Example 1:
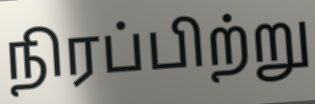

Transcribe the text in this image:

நிரப்பிற்று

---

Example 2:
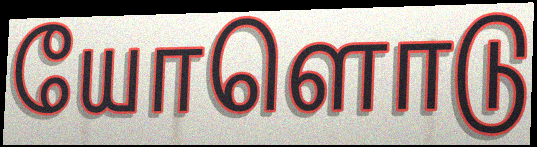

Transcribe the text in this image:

யோளொடு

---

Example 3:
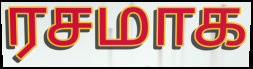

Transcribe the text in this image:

ரசமாக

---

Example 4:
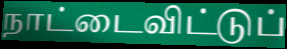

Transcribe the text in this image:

நாட்டைவிட்டுப்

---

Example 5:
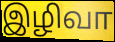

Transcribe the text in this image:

இழிவா